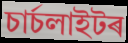
চাৰ্চলাইটৰ